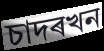
চাদৰখন